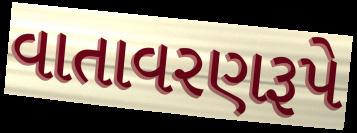
વાતાવરણરૂપે